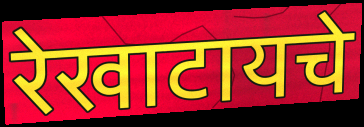
रेखाटायचे